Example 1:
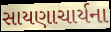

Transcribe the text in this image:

સાયણાચાર્યના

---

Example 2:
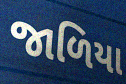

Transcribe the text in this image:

જાળિયા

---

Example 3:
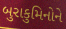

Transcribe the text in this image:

બુરાકુમિનોને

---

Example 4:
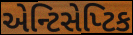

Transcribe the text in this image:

એન્ટિસેપ્ટિક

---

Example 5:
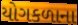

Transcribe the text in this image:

યોગકળાના